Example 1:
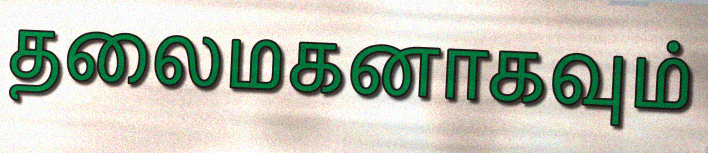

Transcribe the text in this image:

தலைமகனாகவும்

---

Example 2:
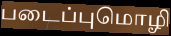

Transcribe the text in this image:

படைப்புமொழி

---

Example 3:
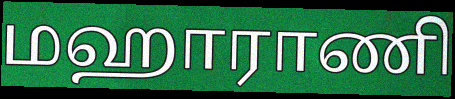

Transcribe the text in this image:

மஹாராணி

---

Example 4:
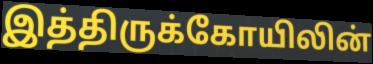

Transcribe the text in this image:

இத்திருக்கோயிலின்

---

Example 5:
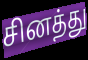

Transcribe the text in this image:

சினத்து